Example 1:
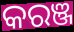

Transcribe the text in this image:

କରଞ୍ଜ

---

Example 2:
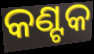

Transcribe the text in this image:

କଣ୍ଟକ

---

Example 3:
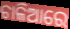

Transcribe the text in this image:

ଚାଳିଆରେ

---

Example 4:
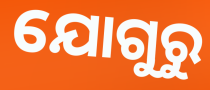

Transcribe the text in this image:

ଯୋଗୁରୁ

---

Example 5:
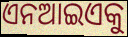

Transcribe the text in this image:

ଏନଆଇଏକୁ